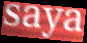
saya